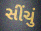
સીંચું